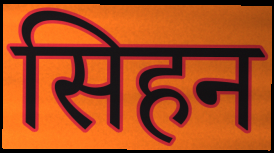
सिहन